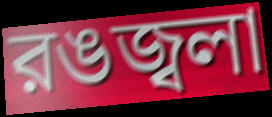
রঙজ্বলা